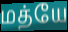
மத்யே